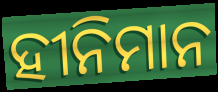
ହୀନିମାନ